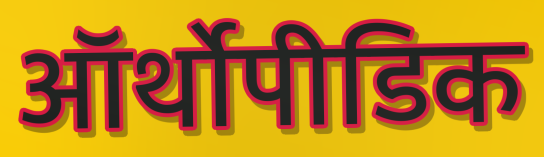
ऑर्थोपीडिक